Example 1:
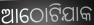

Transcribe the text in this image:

ଆଠୋଟିଯାକ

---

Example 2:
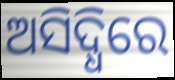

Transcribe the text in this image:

ଅସିଦ୍ଧିରେ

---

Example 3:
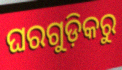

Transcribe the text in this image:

ଘରଗୁଡ଼ିକରୁ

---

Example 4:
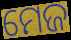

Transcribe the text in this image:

ମେଜ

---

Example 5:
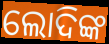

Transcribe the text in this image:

ଲୋଦିଙ୍କ